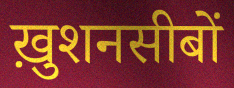
ख़ुशनसीबों